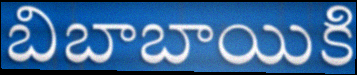
బిబాబాయికి